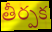
తీర్పక